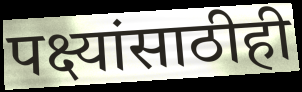
पक्ष्यांसाठीही